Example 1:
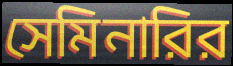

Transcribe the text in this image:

সেমিনারির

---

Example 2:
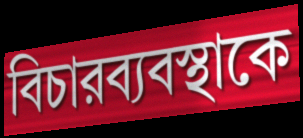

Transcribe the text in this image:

বিচারব্যবস্থাকে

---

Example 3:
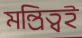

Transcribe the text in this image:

মন্ত্রিত্বই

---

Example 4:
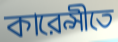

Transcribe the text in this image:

কারেন্সীতে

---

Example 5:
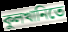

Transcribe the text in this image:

কুলখানিতে